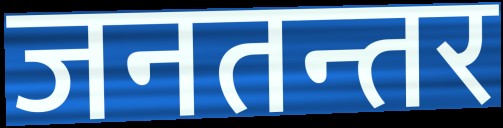
जनतन्तर